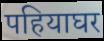
पहियाघर